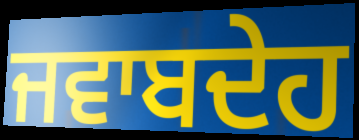
ਜਵਾਬਦੇਹ